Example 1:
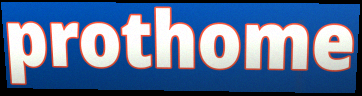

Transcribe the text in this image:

prothome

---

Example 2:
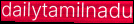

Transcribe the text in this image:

dailytamilnadu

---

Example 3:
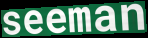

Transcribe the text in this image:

seeman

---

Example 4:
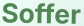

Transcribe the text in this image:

Soffer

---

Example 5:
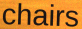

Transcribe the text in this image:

chairs